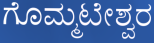
ಗೊಮ್ಮಟೇಶ್ವರ